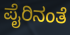
ಪೈರಿನಂತೆ